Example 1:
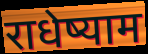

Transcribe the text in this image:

राधेष्याम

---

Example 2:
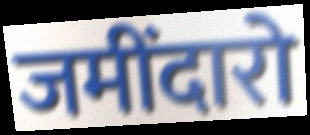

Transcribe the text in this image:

जमींदारो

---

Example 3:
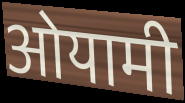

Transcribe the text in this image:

ओयामी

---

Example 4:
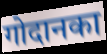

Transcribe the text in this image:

गोदानका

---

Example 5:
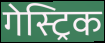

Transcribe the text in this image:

गेस्ट्रिक